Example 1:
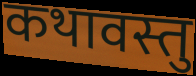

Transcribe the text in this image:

कथावस्‍तु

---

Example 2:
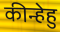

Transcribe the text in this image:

कीन्हेहु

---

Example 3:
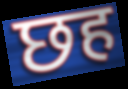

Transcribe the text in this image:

छह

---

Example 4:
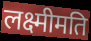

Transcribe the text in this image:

लक्ष्मीमति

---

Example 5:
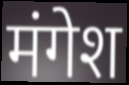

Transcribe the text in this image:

मंगेश